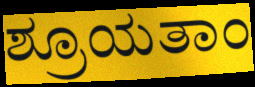
ಶ್ರೂಯತಾಂ